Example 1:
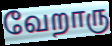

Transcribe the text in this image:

வேறாரு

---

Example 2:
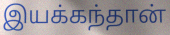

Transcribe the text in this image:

இயக்கந்தான்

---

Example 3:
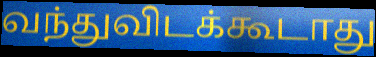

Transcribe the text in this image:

வந்துவிடக்கூடாது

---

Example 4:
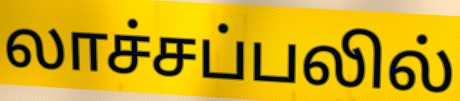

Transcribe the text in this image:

லாச்சப்பலில்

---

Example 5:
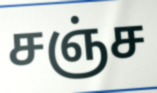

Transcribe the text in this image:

சஞ்ச